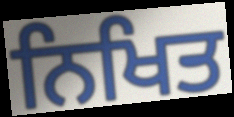
ਨਿਖਿਤ